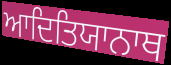
ਆਦਿਤਿਯਾਨਾਥ